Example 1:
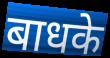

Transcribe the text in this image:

बाधके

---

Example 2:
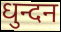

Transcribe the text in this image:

धुन्दन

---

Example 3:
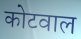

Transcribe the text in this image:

कोटवाल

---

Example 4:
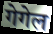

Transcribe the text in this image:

गेगेल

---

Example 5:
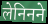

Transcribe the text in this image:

लेनिनने